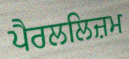
ਪੈਰਲਲਿਜ਼ਮ